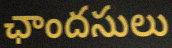
ఛాందసులు